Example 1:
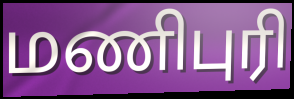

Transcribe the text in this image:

மணிபுரி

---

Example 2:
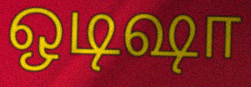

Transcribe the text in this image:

ஒடிஷா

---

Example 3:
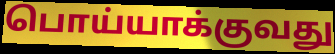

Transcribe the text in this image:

பொய்யாக்குவது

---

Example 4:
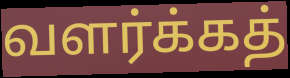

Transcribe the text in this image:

வளர்க்கத்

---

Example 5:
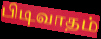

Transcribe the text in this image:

பிடிவாதம்